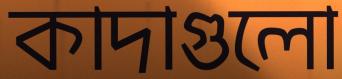
কাদাগুলো